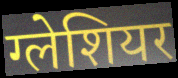
ग्लेशियर